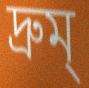
দ্রুম্